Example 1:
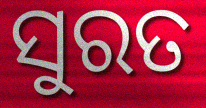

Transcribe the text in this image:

ସୁରତ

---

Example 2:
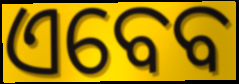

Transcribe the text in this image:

ଏବେବ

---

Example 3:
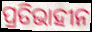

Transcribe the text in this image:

ପ୍ରତିଭାହୀନ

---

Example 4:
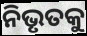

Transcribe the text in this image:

ନିଭୃତକୁ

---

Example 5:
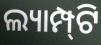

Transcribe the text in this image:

ଲ୍ୟାମ୍ପ୍‍ଟି